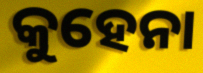
କୁହେନା